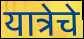
यात्रेचे